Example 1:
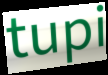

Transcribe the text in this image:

tupi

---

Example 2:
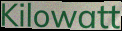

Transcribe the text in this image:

Kilowatt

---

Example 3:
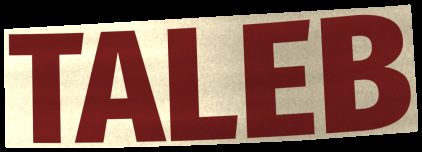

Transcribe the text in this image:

TALEB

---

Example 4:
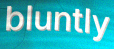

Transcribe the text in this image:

bluntly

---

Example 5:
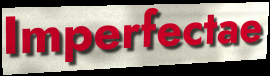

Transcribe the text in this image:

Imperfectae